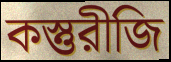
কস্তুরীজি